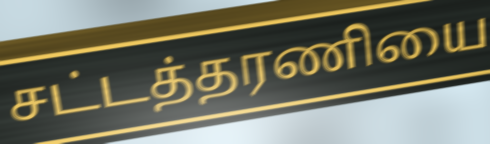
சட்டத்தரணியை